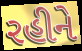
રહીને